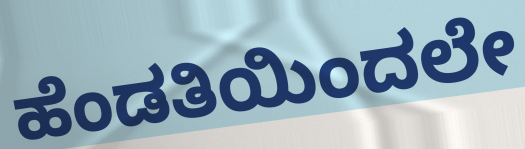
ಹೆಂಡತಿಯಿಂದಲೇ